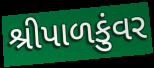
શ્રીપાળકુંવર